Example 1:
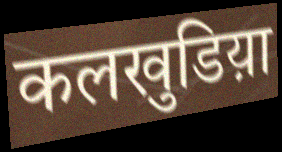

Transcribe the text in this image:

कलखुडिय़ा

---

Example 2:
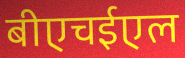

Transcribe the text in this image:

बीएचईएल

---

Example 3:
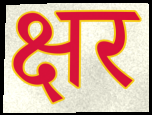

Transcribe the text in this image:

क्षर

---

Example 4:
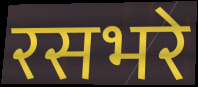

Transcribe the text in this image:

रसभरे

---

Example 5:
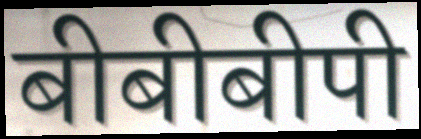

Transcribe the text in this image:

बीबीबीपी